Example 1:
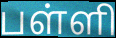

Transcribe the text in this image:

பள்ளி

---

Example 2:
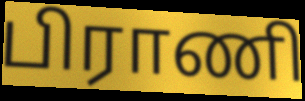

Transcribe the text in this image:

பிராணி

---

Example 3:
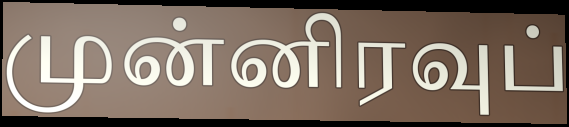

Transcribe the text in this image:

முன்னிரவுப்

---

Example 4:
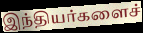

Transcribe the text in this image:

இந்தியர்களைச்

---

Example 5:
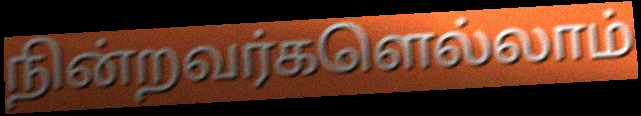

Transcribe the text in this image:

நின்றவர்களெல்லாம்